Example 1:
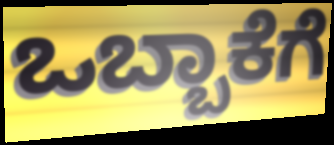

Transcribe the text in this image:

ಒಬ್ಬಾಕೆಗೆ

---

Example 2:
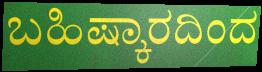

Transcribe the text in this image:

ಬಹಿಷ್ಕಾರದಿಂದ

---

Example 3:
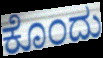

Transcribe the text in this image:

ಕೊಂದು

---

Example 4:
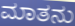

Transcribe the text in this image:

ಮಾತನು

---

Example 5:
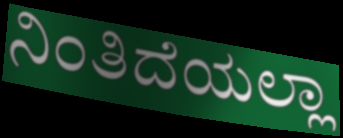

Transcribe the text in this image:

ನಿಂತಿದೆಯಲ್ಲಾ